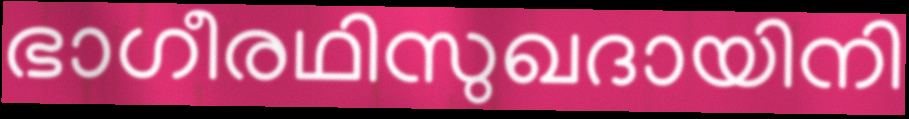
ഭാഗീരഥിസുഖദായിനി